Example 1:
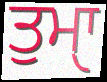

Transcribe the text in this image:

ਤੁਮਾੑ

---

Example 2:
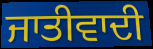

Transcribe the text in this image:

ਜਾਤੀਵਾਦੀ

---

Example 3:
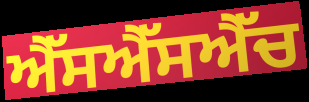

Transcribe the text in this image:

ਐੱਸਐੱਸਐੱਚ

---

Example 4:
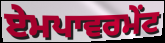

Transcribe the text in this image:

ਏਮਪਾਵਰਮੇਂਟ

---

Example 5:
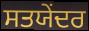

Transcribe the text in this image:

ਸਤਯੇਂਦਰ